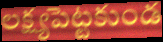
లక్ష్యపెట్టకుండ